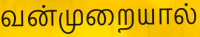
வன்முறையால்